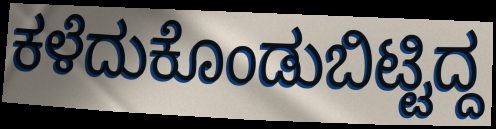
ಕಳೆದುಕೊಂಡುಬಿಟ್ಟಿದ್ದ